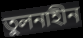
তুলনাহীন